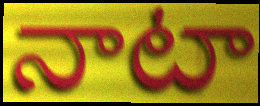
నాటా